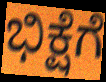
ಭಿಕ್ಷೆಗೆ